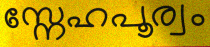
സ്നേഹപൂര്വം